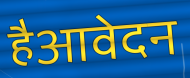
हैआवेदन